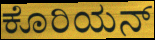
ಕೊರಿಯನ್